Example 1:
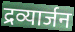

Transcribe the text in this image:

द्रव्यार्जन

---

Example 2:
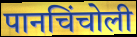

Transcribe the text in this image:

पानचिंचोली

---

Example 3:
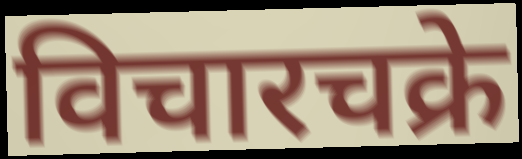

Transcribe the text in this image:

विचारचक्रे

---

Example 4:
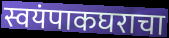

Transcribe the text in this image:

स्वयंपाकघराचा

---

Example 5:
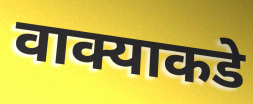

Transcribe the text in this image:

वाक्याकडे